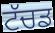
ਟੱਚਡ